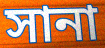
সানা